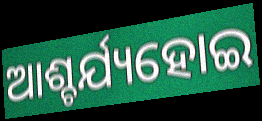
ଆଶ୍ଚର୍ଯ୍ୟହୋଇ